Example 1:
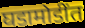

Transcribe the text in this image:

घडामोडींत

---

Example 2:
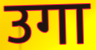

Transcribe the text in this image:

उगा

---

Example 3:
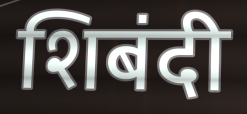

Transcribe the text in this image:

शिबंदी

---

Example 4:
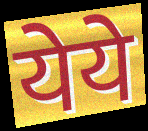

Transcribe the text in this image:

येये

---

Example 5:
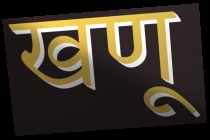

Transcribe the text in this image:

खणू